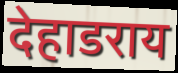
देहाडराय